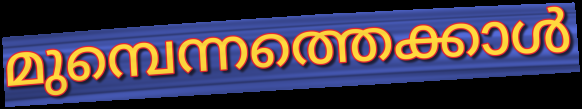
മുമ്പെന്നത്തെക്കാൾ